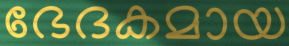
ഭേദകമായ